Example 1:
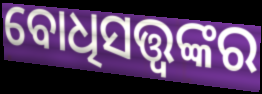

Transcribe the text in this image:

ବୋଧିସତ୍ତ୍ଵଙ୍କର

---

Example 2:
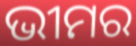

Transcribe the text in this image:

ଭୀମର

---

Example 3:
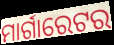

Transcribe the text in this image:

ମାର୍ଗାରେଟର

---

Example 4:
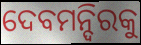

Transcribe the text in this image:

ଦେବମନ୍ଦିରକୁ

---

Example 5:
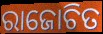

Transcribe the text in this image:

ରାଜୋଚିତ